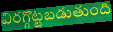
విరగ్గొట్టబడుతుంది